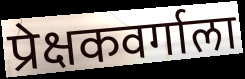
प्रेक्षकवर्गाला